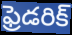
ఫ్రెడరిక్